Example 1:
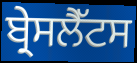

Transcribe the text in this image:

ਬ੍ਰੇਸਲੈੱਟਸ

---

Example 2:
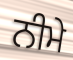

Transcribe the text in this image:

ਨੀਮੇ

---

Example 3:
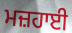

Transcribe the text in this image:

ਮਜ਼ਹਾਈ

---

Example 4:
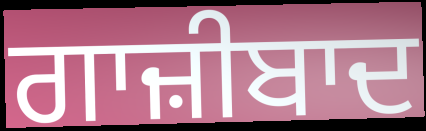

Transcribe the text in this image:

ਗਾਜ਼ੀਬਾਦ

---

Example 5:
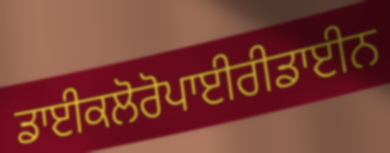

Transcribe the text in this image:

ਡਾਈਕਲੋਰੋਪਾਈਰੀਡਾਈਨ